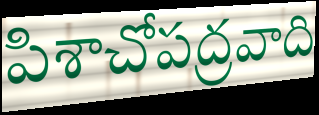
పిశాచోపద్రవాది